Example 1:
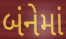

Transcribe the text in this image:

બંનેમાં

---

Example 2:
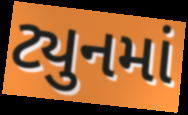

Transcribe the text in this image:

ટ્યુનમાં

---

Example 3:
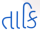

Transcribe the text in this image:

તાકિ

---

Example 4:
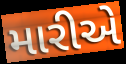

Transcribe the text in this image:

મારીએ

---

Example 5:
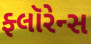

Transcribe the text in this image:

ફ્લૉરેન્સ